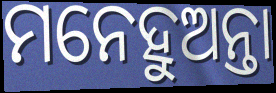
ମନେହୁଅନ୍ତା